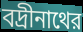
বদ্রীনাথের